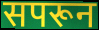
सपरून